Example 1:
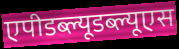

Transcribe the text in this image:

एपीडब्ल्यूडब्ल्यूएस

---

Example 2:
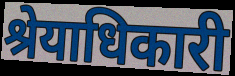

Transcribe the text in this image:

श्रेयाधिकारी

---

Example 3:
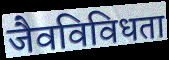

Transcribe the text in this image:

जैवविविधता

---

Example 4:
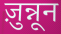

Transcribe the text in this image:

ज़ुन्नून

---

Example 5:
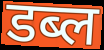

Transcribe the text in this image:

डब्ल